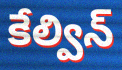
కేల్విన్